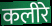
कलीरे